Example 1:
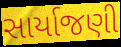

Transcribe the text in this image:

સાર્યાજણી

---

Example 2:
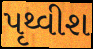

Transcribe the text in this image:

પૃથ્વીશ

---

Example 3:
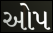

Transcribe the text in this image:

ઓપ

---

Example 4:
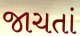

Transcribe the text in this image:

જાચતાં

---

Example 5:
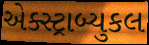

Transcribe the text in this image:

એક્સ્ટ્રાબ્યુકલ